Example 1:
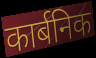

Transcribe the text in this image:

कार्बनिक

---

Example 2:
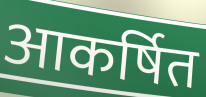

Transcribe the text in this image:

आकर्षित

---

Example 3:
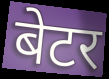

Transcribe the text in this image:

बेटर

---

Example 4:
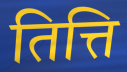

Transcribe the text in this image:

तित्ति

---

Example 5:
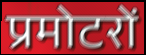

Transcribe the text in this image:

प्रमोटरों